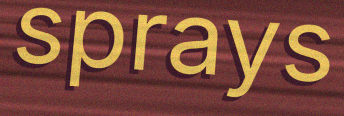
sprays